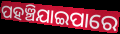
ପହଞ୍ଚିଯାଇପାରେ